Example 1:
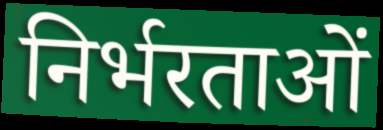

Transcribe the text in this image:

निर्भरताओं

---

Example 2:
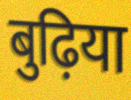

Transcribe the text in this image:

बुढ़िया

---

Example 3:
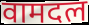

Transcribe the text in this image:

वामदल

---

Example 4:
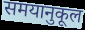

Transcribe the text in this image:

समयानुकूल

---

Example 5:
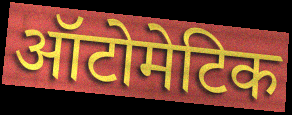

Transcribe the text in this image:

ऑटोमेटिक